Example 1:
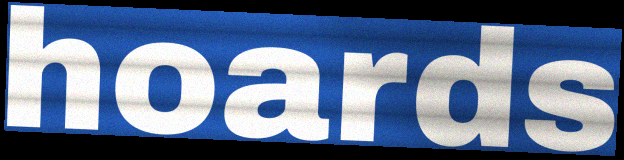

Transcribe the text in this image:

hoards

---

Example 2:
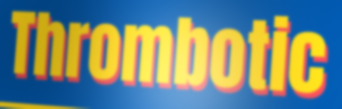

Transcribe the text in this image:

Thrombotic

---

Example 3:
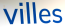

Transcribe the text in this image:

villes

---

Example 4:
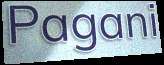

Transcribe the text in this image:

Pagani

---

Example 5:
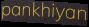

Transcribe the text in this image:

pankhiyan